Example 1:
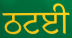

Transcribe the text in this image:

ਠਟਈ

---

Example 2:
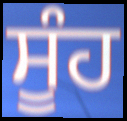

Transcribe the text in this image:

ਸੂੰਹ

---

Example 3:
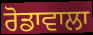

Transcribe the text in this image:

ਰੋਡਾਵਾਲਾ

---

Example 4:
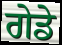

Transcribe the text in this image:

ਗੇਡੇ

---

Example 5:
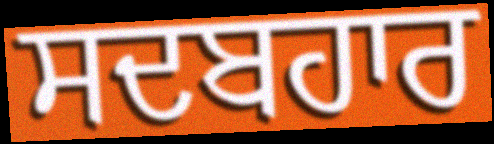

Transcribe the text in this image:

ਸਦਬਹਾਰ